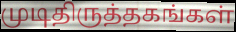
முடிதிருத்தகங்கள்